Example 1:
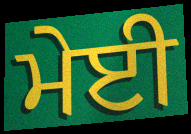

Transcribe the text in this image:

ਮੇਈ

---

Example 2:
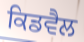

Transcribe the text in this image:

ਕਿਡਵੈਲ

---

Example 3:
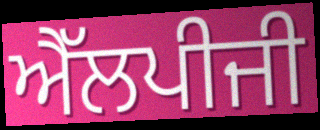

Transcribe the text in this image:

ਐੱਲਪੀਜੀ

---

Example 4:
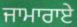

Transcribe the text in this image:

ਜਾਮਾਰਾਏ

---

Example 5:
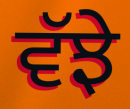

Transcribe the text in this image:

ਵੱਝੇ